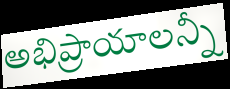
అభిప్రాయాలన్నీ